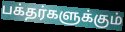
பக்தர்களுக்கும்